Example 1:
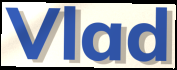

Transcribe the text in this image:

Vlad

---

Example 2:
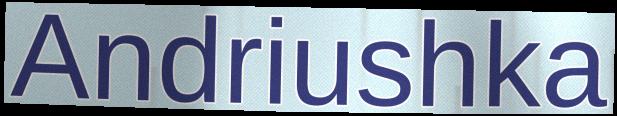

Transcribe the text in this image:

Andriushka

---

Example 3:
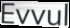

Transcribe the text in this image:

Evvul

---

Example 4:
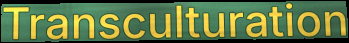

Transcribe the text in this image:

Transculturation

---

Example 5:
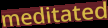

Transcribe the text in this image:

meditated